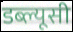
डब्ल्यूसी